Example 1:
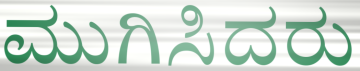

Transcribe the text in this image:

ಮುಗಿಸಿದರು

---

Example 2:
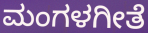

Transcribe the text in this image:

ಮಂಗಳಗೀತೆ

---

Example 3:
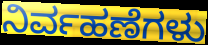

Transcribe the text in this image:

ನಿರ್ವಹಣೆಗಳು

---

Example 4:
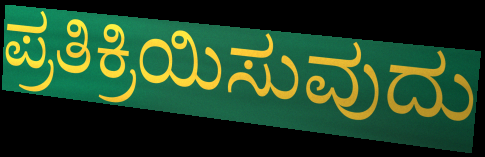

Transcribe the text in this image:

ಪ್ರತಿಕ್ರಿಯಿಸುವುದು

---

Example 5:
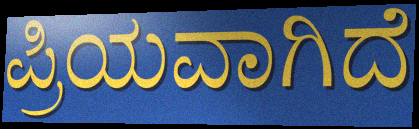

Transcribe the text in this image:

ಪ್ರಿಯವಾಗಿದೆ